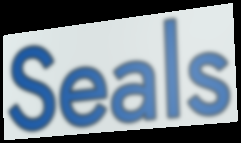
Seals